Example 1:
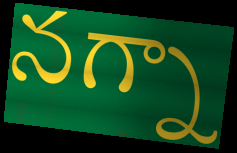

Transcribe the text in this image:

నగ్నా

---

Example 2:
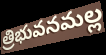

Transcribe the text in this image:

త్రిభువనమల్ల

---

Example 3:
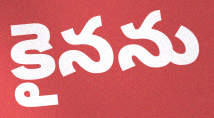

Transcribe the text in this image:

కైనను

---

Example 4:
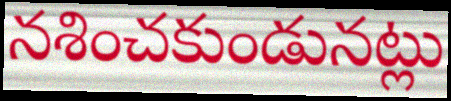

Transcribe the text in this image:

నశించకుండునట్లు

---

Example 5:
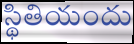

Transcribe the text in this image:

స్థితియందు